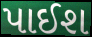
પાઈશ